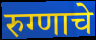
रुग्‍णाचे